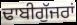
ਢਾਬੀਗੁੱਜਰਾਂ